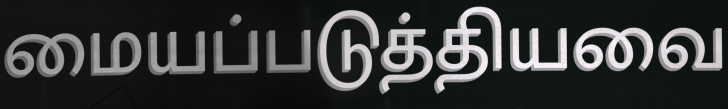
மையப்படுத்தியவை